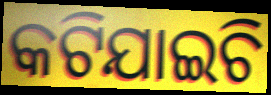
କଟିଯାଇଚି